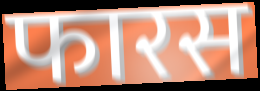
फारस